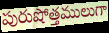
పురుషోత్తములుగా